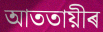
আততায়ীৰ